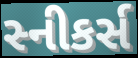
સ્નીકર્સ